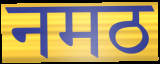
नमठ